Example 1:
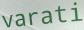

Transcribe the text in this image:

varati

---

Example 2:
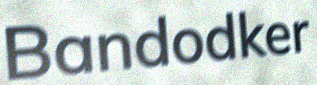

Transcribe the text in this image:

Bandodker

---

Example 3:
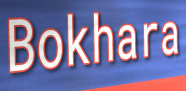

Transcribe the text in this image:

Bokhara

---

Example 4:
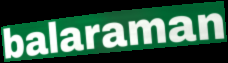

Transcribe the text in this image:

balaraman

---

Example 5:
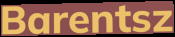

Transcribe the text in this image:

Barentsz